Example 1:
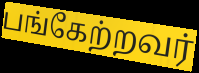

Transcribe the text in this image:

பங்கேற்றவர்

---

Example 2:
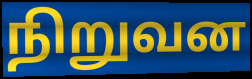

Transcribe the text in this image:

நிறுவன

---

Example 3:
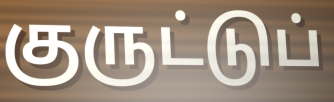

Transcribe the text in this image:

குருட்டுப்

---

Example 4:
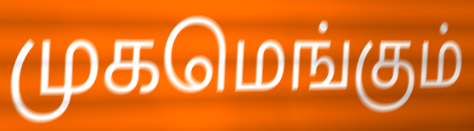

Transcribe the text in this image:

முகமெங்கும்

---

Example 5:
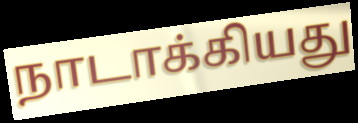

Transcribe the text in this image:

நாடாக்கியது